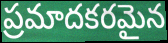
ప్రమాదకరమైన